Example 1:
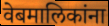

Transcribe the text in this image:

वेबमालिकांना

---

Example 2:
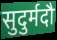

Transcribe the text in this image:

सुदुर्मदौ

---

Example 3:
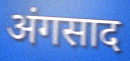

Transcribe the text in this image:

अंगसाद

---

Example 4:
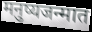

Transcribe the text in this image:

मनुष्यजन्मात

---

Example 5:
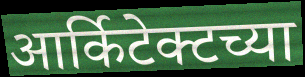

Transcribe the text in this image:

आर्किटेक्टच्या